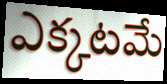
ఎక్కటమే